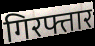
गिरफ्तार